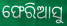
ଫେରିଆସୁ